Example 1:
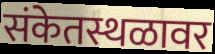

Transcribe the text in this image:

संकेतस्थळावर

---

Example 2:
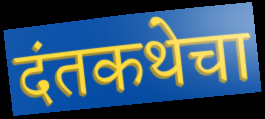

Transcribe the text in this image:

दंतकथेचा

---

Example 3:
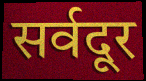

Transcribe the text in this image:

सर्वदूर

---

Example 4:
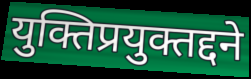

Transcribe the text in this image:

युक्तिप्रयुक्तद्दने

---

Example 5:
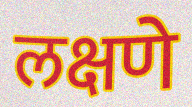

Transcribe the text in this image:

लक्षणे